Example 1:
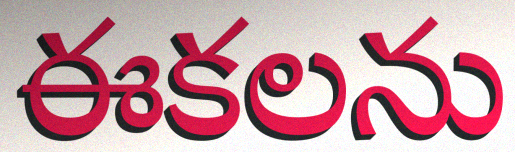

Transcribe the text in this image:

ఈకలను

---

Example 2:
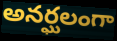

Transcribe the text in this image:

అనర్ఘలంగా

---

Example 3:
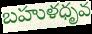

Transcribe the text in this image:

బహుళధృవ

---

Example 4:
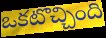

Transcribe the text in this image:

ఒకటొచ్చింది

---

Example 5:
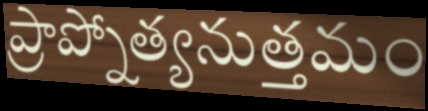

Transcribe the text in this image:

ప్రాప్నోత్యనుత్తమం